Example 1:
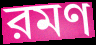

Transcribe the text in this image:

রমণ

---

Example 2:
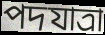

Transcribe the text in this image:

পদযাত্রা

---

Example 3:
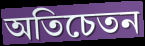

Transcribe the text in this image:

অতিচেতন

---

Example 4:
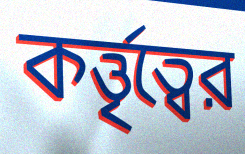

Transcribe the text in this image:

কর্ত্তৃত্বের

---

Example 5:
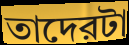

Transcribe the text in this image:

তাদেরটা